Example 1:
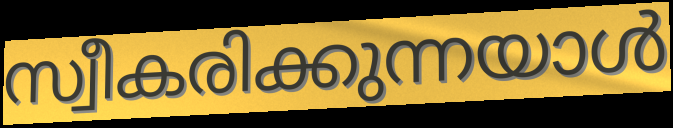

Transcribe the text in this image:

സ്വീകരിക്കുന്നയാൾ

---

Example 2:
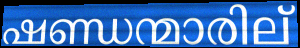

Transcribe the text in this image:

ഷണ്ഡന്മാരില്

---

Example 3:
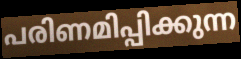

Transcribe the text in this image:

പരിണമിപ്പിക്കുന്ന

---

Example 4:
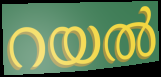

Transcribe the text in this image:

റയൽ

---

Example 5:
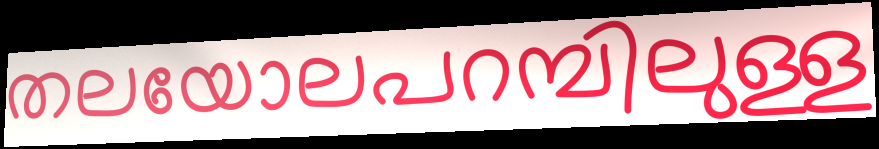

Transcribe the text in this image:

തലയോലപറമ്പിലുള്ള